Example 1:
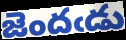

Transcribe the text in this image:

జెందఁడు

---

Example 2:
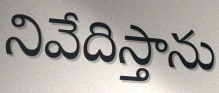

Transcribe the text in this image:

నివేదిస్తాను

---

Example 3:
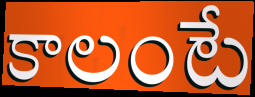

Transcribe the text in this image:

కాలంటే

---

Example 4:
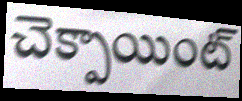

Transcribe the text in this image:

చెక్పాయింట్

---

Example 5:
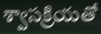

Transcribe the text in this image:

శ్వాసక్రియతో